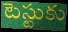
టెస్టుకు